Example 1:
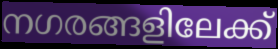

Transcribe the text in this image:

നഗരങ്ങളിലേക്ക്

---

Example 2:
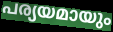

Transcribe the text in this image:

പര്യയമായും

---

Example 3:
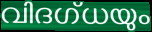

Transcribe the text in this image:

വിദഗ്ധയും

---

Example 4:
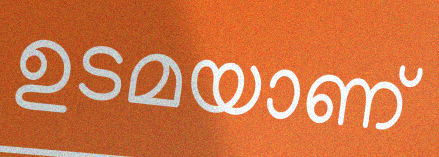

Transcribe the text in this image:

ഉടമയാണ്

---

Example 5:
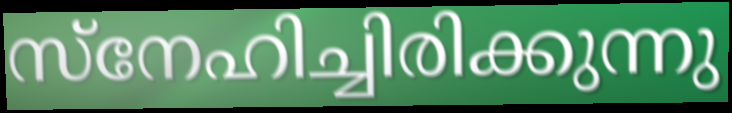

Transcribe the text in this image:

സ്നേഹിച്ചിരിക്കുന്നു